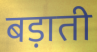
बड़ाती